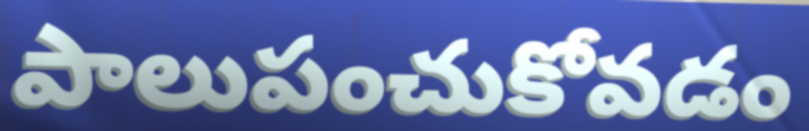
పాలుపంచుకోవడం